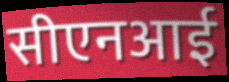
सीएनआई